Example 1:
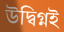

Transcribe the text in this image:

উদ্বিগ্নই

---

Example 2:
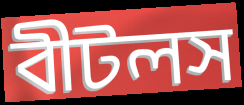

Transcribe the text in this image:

বীটলস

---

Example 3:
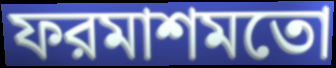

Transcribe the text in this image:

ফরমাশমতো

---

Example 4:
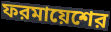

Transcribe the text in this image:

ফরমায়েশের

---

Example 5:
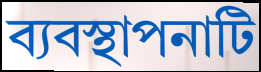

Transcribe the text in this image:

ব্যবস্থাপনাটি